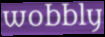
wobbly